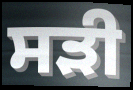
ਸੜੀ